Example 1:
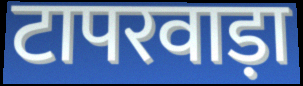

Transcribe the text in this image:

टापरवाड़ा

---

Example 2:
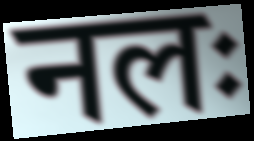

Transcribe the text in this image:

नलः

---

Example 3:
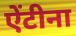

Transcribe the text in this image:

ऐंटीना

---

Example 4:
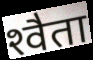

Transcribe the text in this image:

श्वैता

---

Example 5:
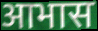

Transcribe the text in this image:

आभास